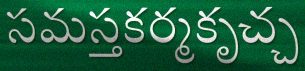
సమస్తకర్మకృచ్చ